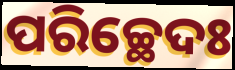
ପରିଚ୍ଛେଦଃ